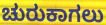
ಚುರುಕಾಗಲು